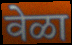
वेळा